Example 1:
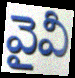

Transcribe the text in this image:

వైవీ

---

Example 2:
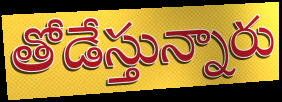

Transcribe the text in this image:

తోడేస్తున్నారు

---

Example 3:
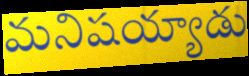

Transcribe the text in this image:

మనిషయ్యాడు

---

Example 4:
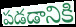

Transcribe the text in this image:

పడడానికి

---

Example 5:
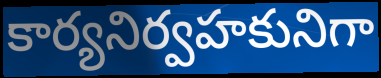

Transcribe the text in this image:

కార్యనిర్వహకునిగా